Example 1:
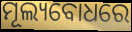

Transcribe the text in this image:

ମୂଲ୍ୟବୋଧରେ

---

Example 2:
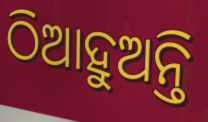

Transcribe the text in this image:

ଠିଆହୁଅନ୍ତି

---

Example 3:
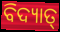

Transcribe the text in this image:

ବିଦ୍ୟାତ୍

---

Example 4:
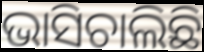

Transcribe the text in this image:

ଭାସିଚାଲିଛି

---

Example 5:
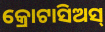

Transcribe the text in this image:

କ୍ରୋଟାସିଅସ୍